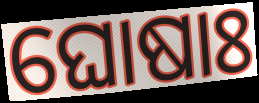
ଘୋଷାଃ